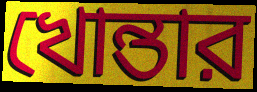
খোন্তার